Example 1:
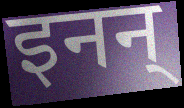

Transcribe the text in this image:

इनन्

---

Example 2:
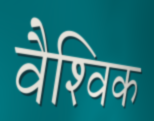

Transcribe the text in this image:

वैश्‍विक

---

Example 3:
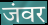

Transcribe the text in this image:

जंवर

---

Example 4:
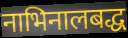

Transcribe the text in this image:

नाभिनालबद्ध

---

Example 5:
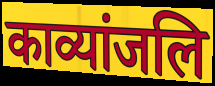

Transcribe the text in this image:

काव्यांजलि